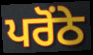
ਪਰੋਂਠੇ